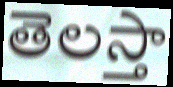
తెలస్తా